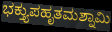
ಭಕ್ತ್ಯುಪಹೃತಮಶ್ನಾಮಿ